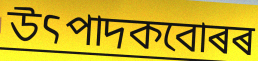
উৎপাদকবোৰৰ